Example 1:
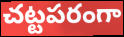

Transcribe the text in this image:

చట్టపరంగా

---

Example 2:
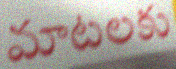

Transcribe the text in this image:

మాటలకు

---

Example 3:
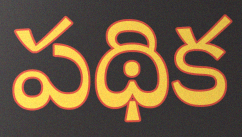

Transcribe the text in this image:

పథిక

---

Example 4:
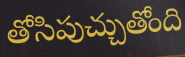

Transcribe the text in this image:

తోసిపుచ్చుతోంది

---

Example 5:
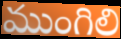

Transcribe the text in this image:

ముంగిలి